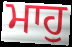
ਮਾਹੁ